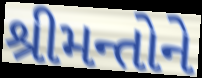
શ્રીમન્તોને